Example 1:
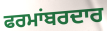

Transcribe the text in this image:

ਫਰਮਾਂਬਰਦਾਰ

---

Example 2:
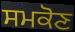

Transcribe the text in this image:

ਸਮਕੋਣ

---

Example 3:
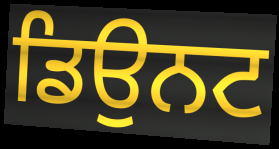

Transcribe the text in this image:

ਡਿਉਨਟ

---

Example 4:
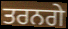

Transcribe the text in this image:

ਤਰਨਗੇ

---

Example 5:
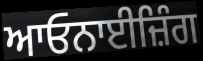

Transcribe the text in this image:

ਆਓਨਾਈਜ਼ਿੰਗ